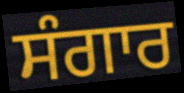
ਸੰਗਾਰ